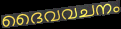
ദൈവവചനം